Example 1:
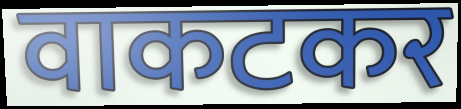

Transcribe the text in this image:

वाकटकर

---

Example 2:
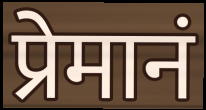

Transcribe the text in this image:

प्रेमानं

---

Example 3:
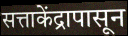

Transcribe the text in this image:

सत्ताकेंद्रापासून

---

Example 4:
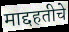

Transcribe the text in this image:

माद्दहतीचे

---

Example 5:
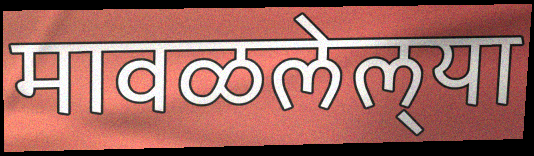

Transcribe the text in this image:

मावळलेल्या